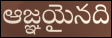
ఆజ్ఞయైనది